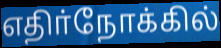
எதிர்நோக்கில்